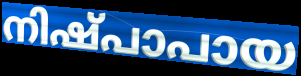
നിഷ്പാപായ